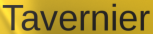
Tavernier